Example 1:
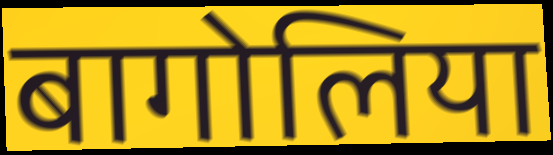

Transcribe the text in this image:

बागोलिया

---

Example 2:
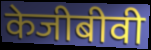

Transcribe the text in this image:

केजीबीवी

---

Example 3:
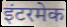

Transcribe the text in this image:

इंटरमेक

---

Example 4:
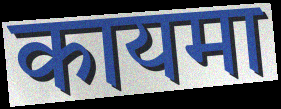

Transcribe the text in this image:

कायमा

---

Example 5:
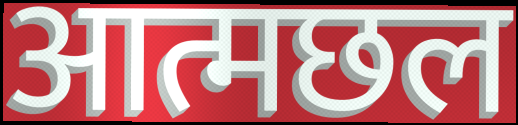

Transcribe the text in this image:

आत्मछल